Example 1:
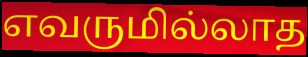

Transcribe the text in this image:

எவருமில்லாத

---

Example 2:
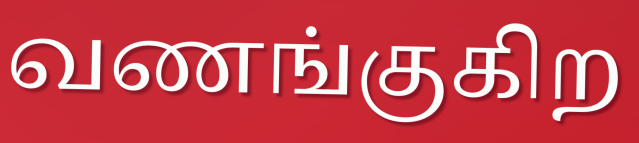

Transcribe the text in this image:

வணங்குகிற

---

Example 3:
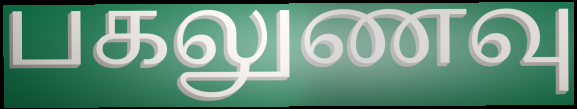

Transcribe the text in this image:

பகலுணவு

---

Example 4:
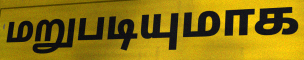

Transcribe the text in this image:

மறுபடியுமாக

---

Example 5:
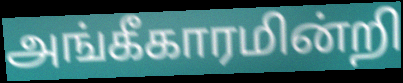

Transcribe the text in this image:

அங்கீகாரமின்றி